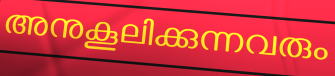
അനുകൂലിക്കുന്നവരും